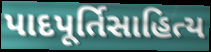
પાદપૂર્તિસાહિત્ય